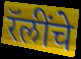
रॅलींचे